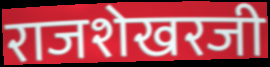
राजशेखरजी